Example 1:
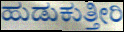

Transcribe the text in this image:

ಹುಡುಕುತ್ತೀರಿ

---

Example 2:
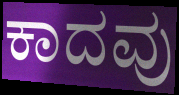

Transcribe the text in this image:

ಕಾದವು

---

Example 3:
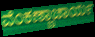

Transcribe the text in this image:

ವೆಂಕಣ್ಣಾಚಾರ್ಯ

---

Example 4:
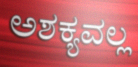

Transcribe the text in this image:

ಅಶಕ್ಯವಲ್ಲ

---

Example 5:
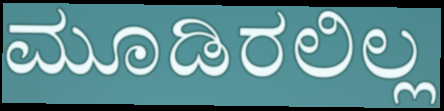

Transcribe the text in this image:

ಮೂಡಿರಲಿಲ್ಲ